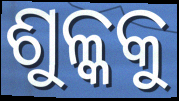
ଶୁଳ୍କକୁ